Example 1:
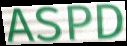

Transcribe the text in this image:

ASPD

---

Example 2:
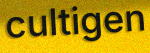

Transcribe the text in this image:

cultigen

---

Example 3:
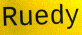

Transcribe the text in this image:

Ruedy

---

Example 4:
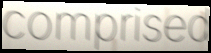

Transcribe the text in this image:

comprised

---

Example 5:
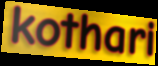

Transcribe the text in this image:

kothari